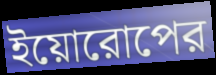
ইয়োরোপের